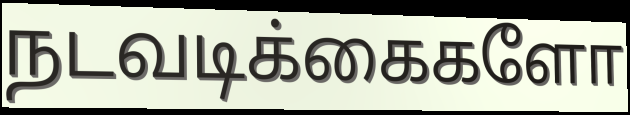
நடவடிக்கைகளோ